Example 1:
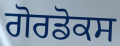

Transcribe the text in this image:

ਗੋਰਡੋਕਸ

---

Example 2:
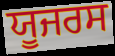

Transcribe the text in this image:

ਯੂਜਰਸ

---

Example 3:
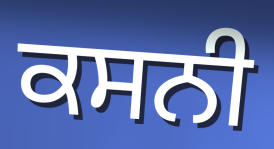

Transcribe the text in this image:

ਕਸਨੀ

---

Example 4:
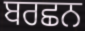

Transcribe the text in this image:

ਬਰਛਨ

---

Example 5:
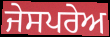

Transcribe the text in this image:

ਜੇਸਪਰੇਅ